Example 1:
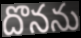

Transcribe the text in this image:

దొనను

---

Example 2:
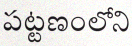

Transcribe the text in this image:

పట్టణంలోని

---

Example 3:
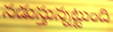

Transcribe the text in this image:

నడుస్తున్నట్టుంది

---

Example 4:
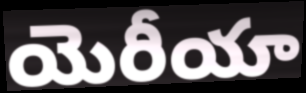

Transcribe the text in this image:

యెరీయా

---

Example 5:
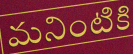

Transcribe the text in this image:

మనింటికి